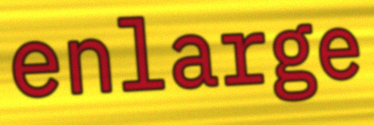
enlarge